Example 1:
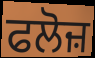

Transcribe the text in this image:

ਫਲੋਜ਼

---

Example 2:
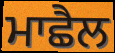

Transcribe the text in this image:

ਮਾਛੈਲ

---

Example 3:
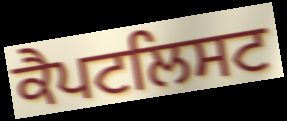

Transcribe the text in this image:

ਕੈਪਟਲਿਸਟ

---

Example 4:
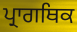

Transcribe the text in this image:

ਪ੍ਰਾਗਥਿਕ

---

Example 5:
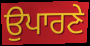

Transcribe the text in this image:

ਉਪਾਰਣੇ